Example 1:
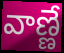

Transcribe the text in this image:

వాణ్ణే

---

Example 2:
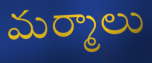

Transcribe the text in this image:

మర్మాలు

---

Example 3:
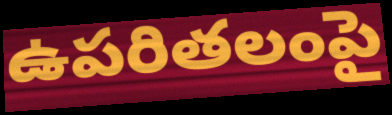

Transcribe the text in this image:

ఉపరితలంపై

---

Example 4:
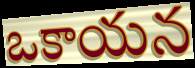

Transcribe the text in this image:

ఒకాయన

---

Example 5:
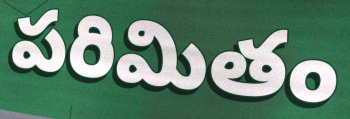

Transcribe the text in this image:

పరిమితం